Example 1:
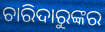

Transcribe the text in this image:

ଚାରିଦାରୁଙ୍କର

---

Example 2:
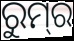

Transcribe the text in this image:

ରୁମ୍‍ର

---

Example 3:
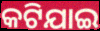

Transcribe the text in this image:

କଟିଯାଇ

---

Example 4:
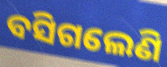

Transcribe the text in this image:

ବସିଗଲେଣି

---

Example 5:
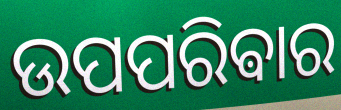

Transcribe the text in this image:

ଉପପରିଵାର